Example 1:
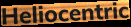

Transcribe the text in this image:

Heliocentric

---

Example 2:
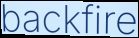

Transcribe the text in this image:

backfire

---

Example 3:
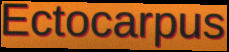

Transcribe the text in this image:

Ectocarpus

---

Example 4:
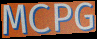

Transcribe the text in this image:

MCPG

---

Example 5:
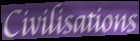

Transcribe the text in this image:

Civilisations